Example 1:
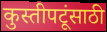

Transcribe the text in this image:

कुस्तीपटूंसाठी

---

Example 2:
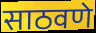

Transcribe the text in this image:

साठवणे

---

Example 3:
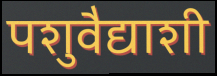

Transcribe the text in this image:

पशुवैद्याशी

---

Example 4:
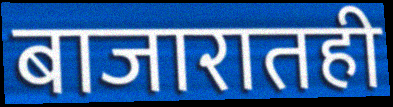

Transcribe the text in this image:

बाजारातही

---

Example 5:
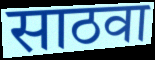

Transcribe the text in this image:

साठवा